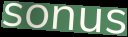
sonus